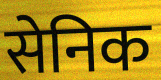
सेनिक